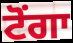
ਟੋਂਗਾ